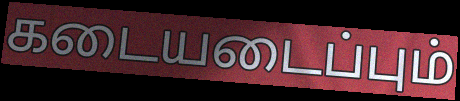
கடையடைப்பும்